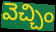
వెచ్చిం